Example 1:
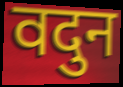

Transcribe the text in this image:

वदुन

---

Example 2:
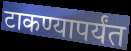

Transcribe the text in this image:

टाकण्यापर्यंत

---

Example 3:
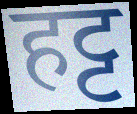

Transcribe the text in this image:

हट्ट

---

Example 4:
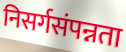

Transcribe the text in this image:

निसर्गसंपन्नता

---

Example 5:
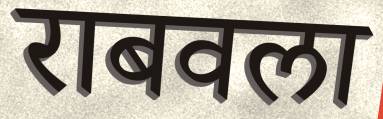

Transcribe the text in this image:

राबवला